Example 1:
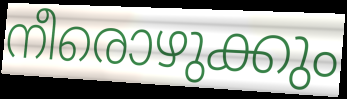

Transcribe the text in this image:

നീരൊഴുക്കും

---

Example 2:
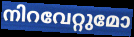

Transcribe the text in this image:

നിറവേറ്റുമോ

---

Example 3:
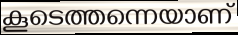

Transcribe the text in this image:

കൂടെത്തന്നെയാണ്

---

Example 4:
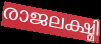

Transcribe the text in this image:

രാജലക്ഷ്മി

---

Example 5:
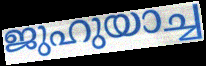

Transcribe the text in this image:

ജുഹുയാച്ച